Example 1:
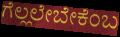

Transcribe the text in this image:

ಗೆಲ್ಲಲೇಬೇಕೆಂಬ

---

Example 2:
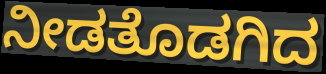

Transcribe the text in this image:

ನೀಡತೊಡಗಿದ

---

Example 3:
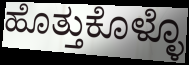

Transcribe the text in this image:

ಹೊತ್ತುಕೊಳ್ಳೊ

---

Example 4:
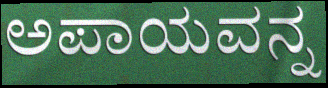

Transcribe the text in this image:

ಅಪಾಯವನ್ನ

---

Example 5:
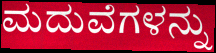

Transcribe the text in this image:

ಮದುವೆಗಳನ್ನು